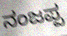
ನಂಜಪ್ಪ